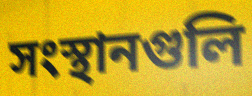
সংস্থানগুলি